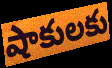
షాకులకు